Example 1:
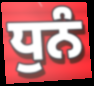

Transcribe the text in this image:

ਧੁਨੰ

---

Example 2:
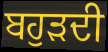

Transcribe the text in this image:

ਬਹੁੜਦੀ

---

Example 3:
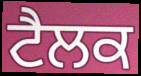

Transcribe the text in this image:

ਟੈਲਕ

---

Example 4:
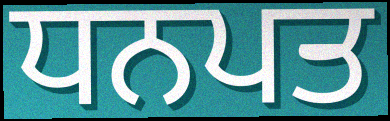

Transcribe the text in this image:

ਧਨਪਤ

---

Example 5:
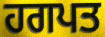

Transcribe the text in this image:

ਹਗਪਤ